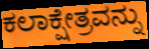
ಕಲಾಕ್ಷೇತ್ರವನ್ನು